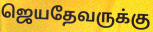
ஜெயதேவருக்கு